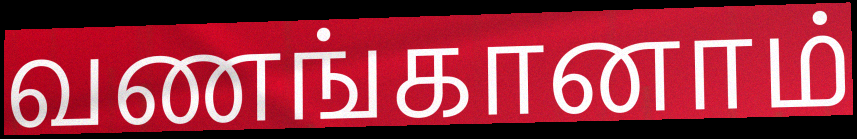
வணங்கானாம்